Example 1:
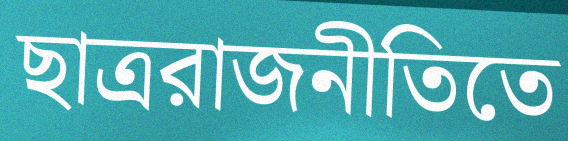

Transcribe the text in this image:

ছাত্ররাজনীতিতে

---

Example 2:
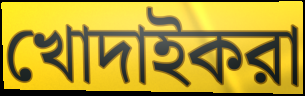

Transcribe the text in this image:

খোদাইকরা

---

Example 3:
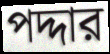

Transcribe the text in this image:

পদ্দার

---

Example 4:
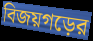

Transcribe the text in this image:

বিজয়গড়ের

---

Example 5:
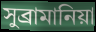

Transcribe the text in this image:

সুব্রামানিয়া